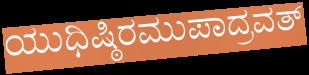
ಯುಧಿಷ್ಠಿರಮುಪಾದ್ರವತ್